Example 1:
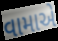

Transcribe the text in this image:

વામાએ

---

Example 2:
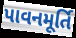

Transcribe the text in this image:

પાવનમૂર્તિ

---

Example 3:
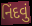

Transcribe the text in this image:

નિંદવું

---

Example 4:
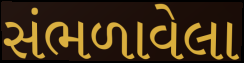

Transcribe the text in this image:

સંભળાવેલા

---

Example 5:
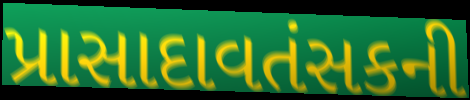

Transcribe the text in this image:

પ્રાસાદાવતંસકની